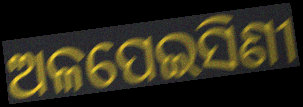
ଅଳପେଇସିଣୀ